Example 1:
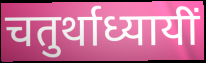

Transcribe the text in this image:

चतुर्थाध्यायीं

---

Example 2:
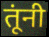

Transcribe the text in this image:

तूंनी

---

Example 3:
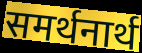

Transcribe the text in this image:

समर्थनार्थ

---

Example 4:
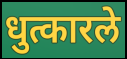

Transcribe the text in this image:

धुत्कारले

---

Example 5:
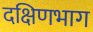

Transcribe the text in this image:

दक्षिणभाग